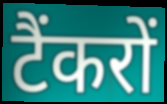
टैंकरों